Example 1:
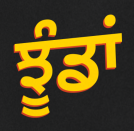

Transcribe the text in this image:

ਝੂੰਡਾਂ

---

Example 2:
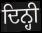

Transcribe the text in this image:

ਦਿਨ੍ਹੀ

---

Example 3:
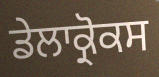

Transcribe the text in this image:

ਡੇਲਾਕ੍ਰੋਕਸ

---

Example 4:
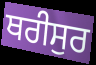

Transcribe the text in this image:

ਥਰੀਸੁਰ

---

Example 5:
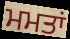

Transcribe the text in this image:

ਮਮਤਾਂ